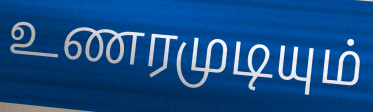
உணரமுடியும்